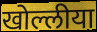
खोल्लीया